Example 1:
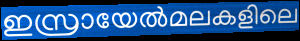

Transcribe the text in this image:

ഇസ്രായേൽമലകളിലെ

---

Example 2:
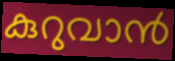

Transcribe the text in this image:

കുറുവാൻ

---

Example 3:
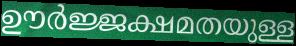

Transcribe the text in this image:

ഊർജ്ജക്ഷമതയുള്ള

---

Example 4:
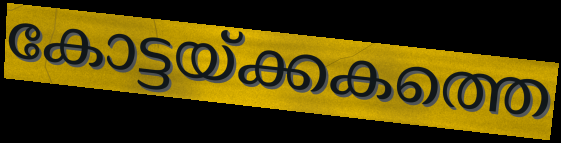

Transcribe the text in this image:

കോട്ടയ്ക്കകത്തെ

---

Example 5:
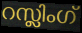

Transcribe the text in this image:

റസ്ലിംഗ്